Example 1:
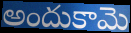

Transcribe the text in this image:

అందుకామె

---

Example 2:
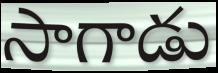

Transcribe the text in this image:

సాగాడు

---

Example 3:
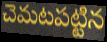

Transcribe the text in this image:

చెమటపట్టిన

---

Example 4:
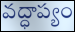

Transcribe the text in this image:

వద్ధాప్యం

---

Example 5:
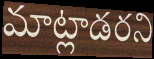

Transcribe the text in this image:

మాట్లాడరని